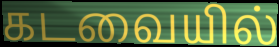
கடவையில்